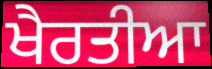
ਖੈਰਤੀਆ